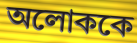
অলোককে